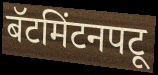
बॅटमिंटनपटू